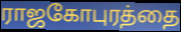
ராஜகோபுரத்தை